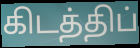
கிடத்திப்